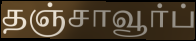
தஞ்சாவூர்ப்